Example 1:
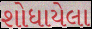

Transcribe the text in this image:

શોધાયેલા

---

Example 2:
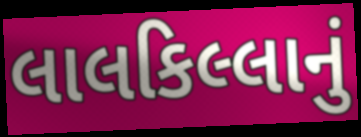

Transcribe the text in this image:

લાલકિલ્લાનું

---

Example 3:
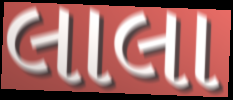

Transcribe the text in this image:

લાલા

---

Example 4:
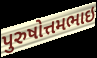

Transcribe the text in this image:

પુરુષોત્તમભાઇ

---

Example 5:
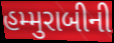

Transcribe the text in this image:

હમ્મુરાબીની